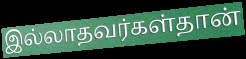
இல்லாதவர்கள்தான்